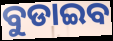
ବୁଡାଇବ